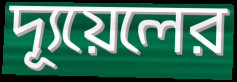
দ্যূয়েলের